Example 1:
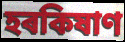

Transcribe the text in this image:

হৰকিষাণ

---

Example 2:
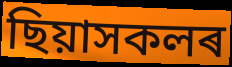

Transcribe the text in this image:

ছিয়াসকলৰ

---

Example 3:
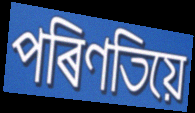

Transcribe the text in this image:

পৰিণতিয়ে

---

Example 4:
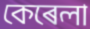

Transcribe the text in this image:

কেৰেলা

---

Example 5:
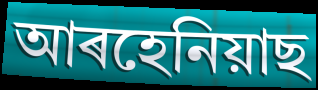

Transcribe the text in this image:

আৰহেনিয়াছ